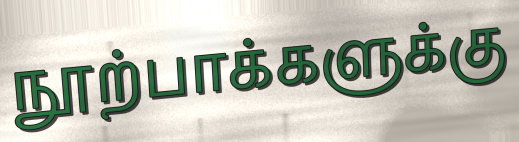
நூற்பாக்களுக்கு